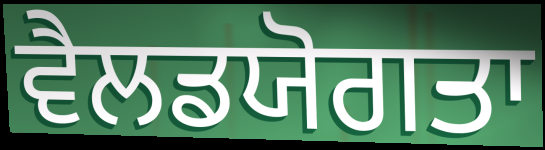
ਵੈਲਡਯੋਗਤਾ